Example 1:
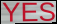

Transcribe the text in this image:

YES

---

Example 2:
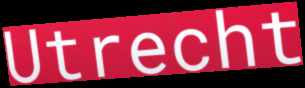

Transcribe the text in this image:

Utrecht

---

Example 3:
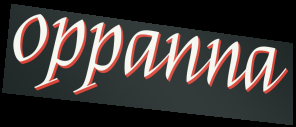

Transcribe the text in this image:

oppanna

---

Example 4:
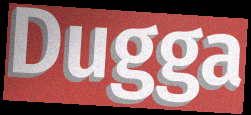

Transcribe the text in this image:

Dugga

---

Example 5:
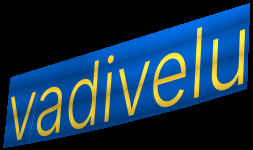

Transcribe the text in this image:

vadivelu